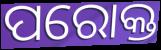
ପରୋକ୍ତ